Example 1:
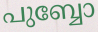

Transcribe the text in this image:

പുബ്ബോ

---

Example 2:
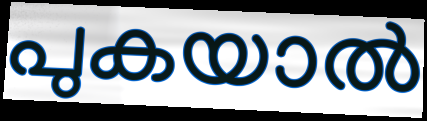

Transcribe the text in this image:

പുകയാൽ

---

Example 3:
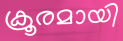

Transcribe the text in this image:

ക്രൂരമായി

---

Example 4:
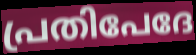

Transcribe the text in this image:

പ്രതിപേദേ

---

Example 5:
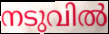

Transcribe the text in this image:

നടുവിൽ